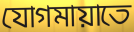
যোগমায়াতে